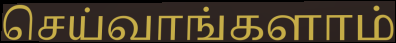
செய்வாங்களாம்